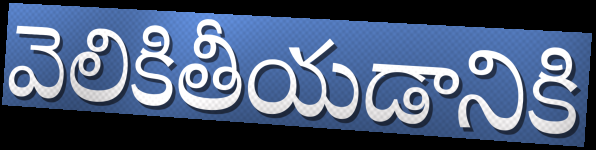
వెలికితీయడానికి